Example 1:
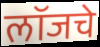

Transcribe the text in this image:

लॉजचे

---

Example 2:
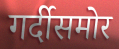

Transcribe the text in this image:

गर्दीसमोर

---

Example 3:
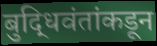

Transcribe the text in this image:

बुद्धिवंतांकडून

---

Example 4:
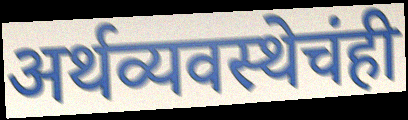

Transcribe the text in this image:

अर्थव्यवस्थेचंही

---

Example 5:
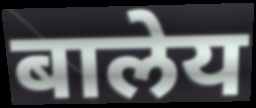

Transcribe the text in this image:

बालेय